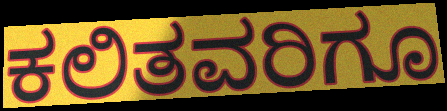
ಕಲಿತವರಿಗೂ